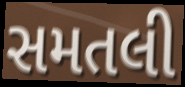
સમતલી